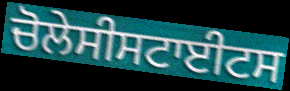
ਚੋਲੇਸੀਸਟਾਈਟਸ